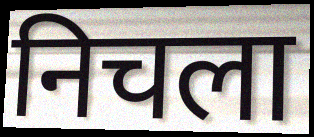
निचला